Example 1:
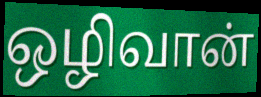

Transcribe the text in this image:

ஒழிவான்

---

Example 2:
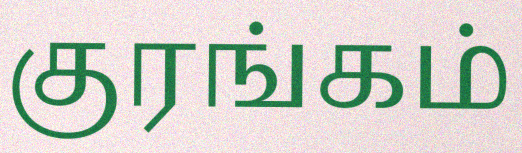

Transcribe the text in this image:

குரங்கம்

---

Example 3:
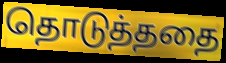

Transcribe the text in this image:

தொடுத்ததை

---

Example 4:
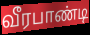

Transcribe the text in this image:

வீரபாண்டி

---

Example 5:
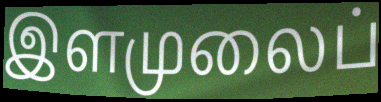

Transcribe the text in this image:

இளமுலைப்